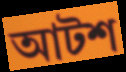
আটশ